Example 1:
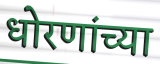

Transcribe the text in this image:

धोरणांच्या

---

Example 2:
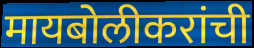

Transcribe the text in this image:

मायबोलीकरांची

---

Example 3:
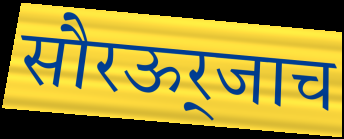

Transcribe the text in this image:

सौरऊर्जाच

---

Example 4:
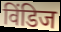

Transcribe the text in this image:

विंडिज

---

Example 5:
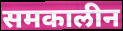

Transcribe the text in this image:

समकालीन